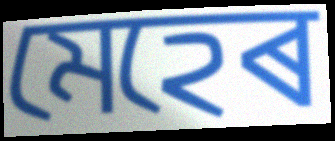
মেহেৰ